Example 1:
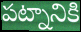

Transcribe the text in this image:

పట్నానికి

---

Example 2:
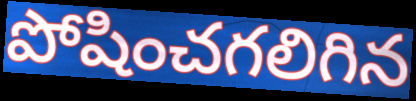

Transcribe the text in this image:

పోషించగలిగిన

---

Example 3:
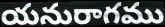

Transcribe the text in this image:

యనురాగము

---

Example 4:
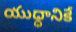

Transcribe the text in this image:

యుధ్ధానికే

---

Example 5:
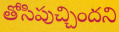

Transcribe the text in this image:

తోసిపుచ్చిందని